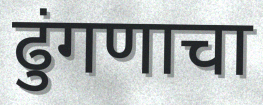
ढुंगणाचा